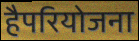
हैपरियोजना